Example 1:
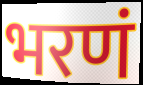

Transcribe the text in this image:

भरणं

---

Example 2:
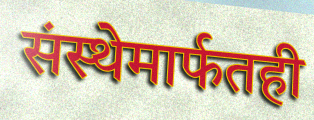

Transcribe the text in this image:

संस्थेमार्फतही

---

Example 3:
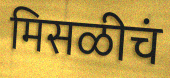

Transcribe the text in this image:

मिसळीचं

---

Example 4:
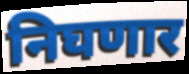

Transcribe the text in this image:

निघणार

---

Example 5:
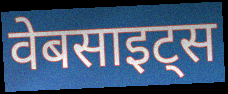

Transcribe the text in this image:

वेबसाइट्स